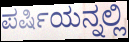
ಪರ್ಷಿಯನ್ನಲ್ಲಿ